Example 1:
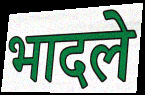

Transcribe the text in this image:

भादले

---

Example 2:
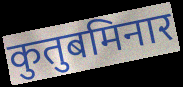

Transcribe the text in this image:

कुतुबमिनार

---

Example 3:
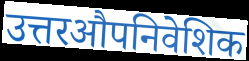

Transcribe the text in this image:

उत्तरऔपनिवेशिक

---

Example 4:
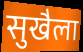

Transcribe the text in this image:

सुखैला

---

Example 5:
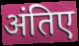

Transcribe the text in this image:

अंतिए